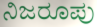
ನಿಜರೂಪು